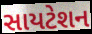
સાયટેશન